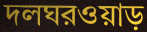
দলঘরওয়াড়